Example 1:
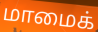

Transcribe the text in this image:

மாமைக்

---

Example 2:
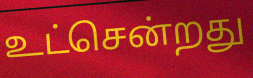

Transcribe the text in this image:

உட்சென்றது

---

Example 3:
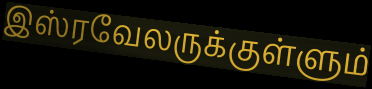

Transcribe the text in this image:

இஸ்ரவேலருக்குள்ளும்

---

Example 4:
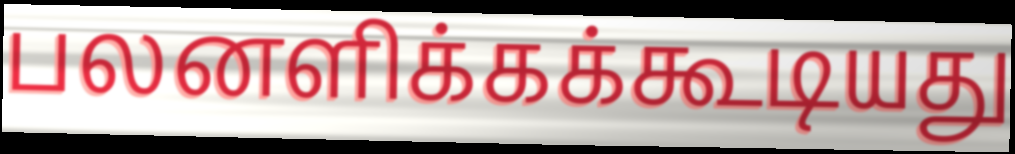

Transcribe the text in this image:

பலனளிக்கக்கூடியது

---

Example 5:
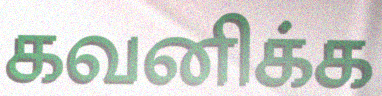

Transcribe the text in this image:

கவனிக்க